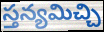
స్తన్యమిచ్చి